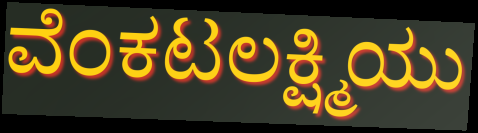
ವೆಂಕಟಲಕ್ಷ್ಮಿಯು